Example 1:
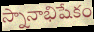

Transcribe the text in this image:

స్నానాభిషేకం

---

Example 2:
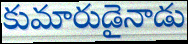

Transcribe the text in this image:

కుమారుడైనాడు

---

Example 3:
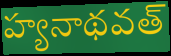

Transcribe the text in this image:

హ్యనాథవత్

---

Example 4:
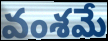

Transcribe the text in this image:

వంశమే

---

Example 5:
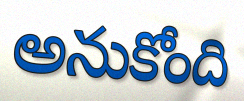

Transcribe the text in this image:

అనుకోంది